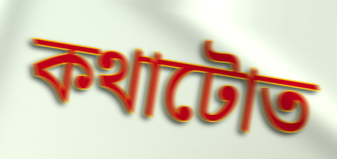
কথাটোত